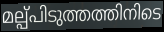
മല്പ്പിടുത്തത്തിനിടെ